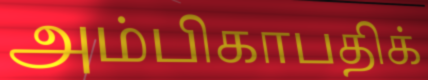
அம்பிகாபதிக்